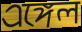
এঙ্গেল